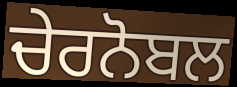
ਚੇਰਨੋਬਲ